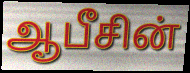
ஆபீசின்